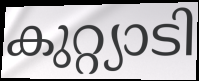
കുറ്റ്യാടി